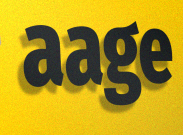
aage